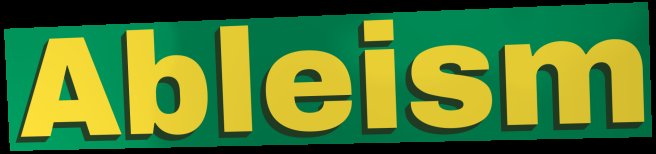
Ableism